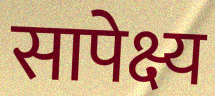
सापेक्ष्य